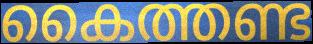
കൈത്തണ്ട